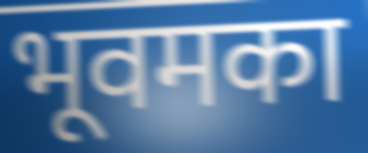
भूवमका